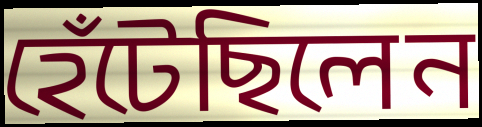
হেঁটেছিলেন